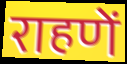
राहणें